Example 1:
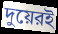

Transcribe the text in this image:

দুয়েরই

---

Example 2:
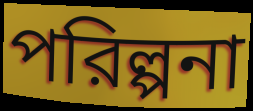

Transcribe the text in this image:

পরিল্পনা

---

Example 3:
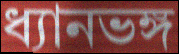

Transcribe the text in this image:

ধ্যানভঙ্গ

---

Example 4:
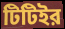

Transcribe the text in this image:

টিটিইর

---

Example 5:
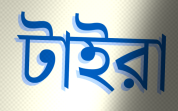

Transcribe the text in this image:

টাইরা